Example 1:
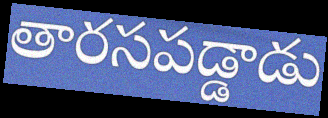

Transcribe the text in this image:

తారసపడ్డాడు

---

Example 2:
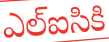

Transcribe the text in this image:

ఎల్ఐసికి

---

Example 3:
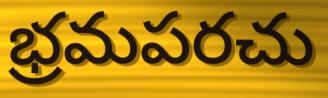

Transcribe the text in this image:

భ్రమపరచు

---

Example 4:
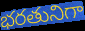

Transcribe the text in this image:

భరతునిగా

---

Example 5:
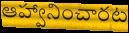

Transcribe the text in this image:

ఆహ్వానించారట